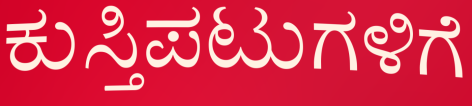
ಕುಸ್ತಿಪಟುಗಳಿಗೆ